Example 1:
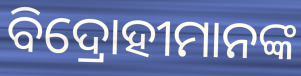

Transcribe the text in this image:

ବିଦ୍ରୋହୀମାନଙ୍କ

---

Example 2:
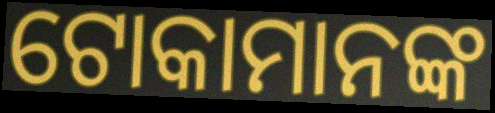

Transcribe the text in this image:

ଟୋକାମାନଙ୍କ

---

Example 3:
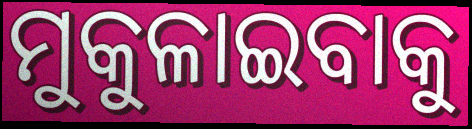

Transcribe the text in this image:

ମୁକୁଳାଇବାକୁ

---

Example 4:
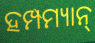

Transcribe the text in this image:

ହମ୍ପମ୍ୟାନ୍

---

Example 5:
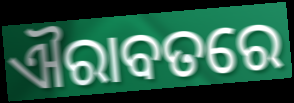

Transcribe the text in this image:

ଐରାବତରେ